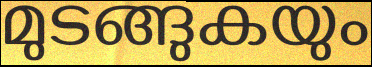
മുടങ്ങുകയും